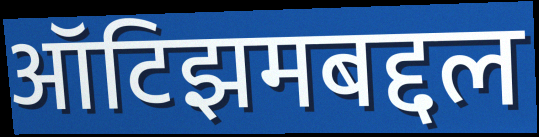
ऑटिझमबद्दल